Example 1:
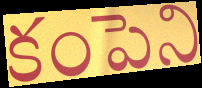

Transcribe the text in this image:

కంపెని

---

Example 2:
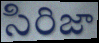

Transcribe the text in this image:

సిరిజా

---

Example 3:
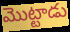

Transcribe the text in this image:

మొట్టాడు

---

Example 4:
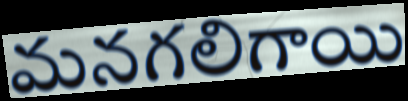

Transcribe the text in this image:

మనగలిగాయి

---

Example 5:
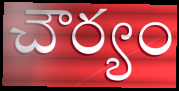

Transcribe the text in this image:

చౌర్యం